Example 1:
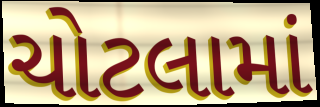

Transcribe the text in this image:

ચોટલામાં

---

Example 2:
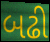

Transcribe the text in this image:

બઢી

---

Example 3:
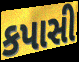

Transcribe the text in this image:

કપાસી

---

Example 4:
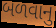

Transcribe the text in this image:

બળવાનુ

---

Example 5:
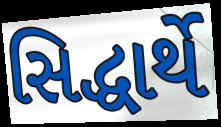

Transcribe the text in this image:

સિદ્ધાર્થે